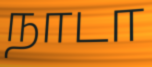
நாடா